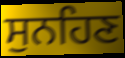
ਸੁਨਹਿਣ